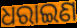
ଧରାଇଣ